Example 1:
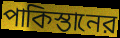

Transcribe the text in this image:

পাকিস্তানের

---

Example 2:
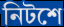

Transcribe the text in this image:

নিটশে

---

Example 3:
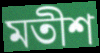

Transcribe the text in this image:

মতীশ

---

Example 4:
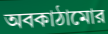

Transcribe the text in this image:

অবকাঠামোর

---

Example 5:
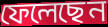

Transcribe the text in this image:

ফেলেছেন